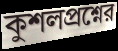
কুশলপ্রশ্নের